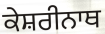
ਕੇਸ਼ਰੀਨਾਥ